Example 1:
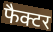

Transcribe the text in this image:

फैक्टर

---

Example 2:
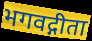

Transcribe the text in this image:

भगवद्गीता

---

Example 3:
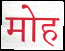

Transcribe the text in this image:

मोह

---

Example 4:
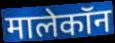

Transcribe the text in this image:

मालेकॉन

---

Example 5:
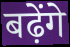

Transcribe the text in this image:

बढ़ेंगे